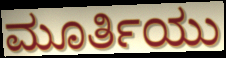
ಮೂರ್ತಿಯು